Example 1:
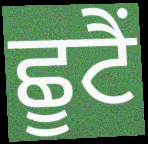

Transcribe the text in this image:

ਛੂਟੈਂ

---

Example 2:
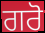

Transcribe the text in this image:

ਗਰੋ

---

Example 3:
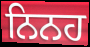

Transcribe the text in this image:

ਨਿਨਹ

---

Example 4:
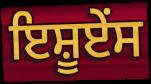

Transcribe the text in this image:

ਇਸ਼ੂਏਂਸ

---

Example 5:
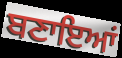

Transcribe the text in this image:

ਬਣਾਇਆਂ